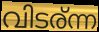
വിടര്ന്ന